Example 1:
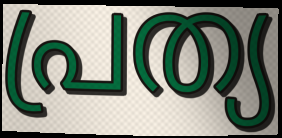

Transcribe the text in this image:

പ്രത്യ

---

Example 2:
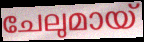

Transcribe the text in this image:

ചേലുമായ്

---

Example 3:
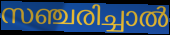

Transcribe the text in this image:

സഞ്ചരിച്ചാൽ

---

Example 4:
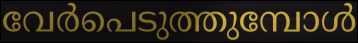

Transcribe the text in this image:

വേർപെടുത്തുമ്പോൾ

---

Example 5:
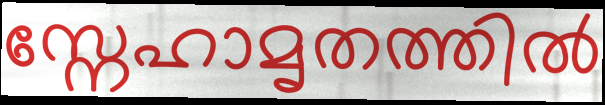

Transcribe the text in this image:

സ്നേഹാമൃതത്തിൽ